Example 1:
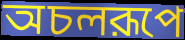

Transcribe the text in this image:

অচলরূপে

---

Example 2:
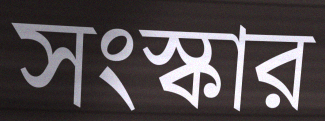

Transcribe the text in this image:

সংস্কার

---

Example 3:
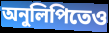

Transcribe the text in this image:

অনুলিপিতেও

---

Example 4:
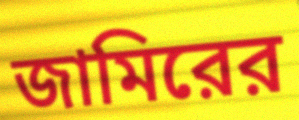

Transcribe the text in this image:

জামিরের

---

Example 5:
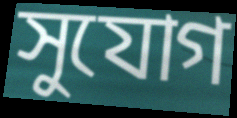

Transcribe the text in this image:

সুযোগ